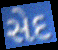
સેદ